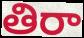
తిరా